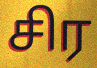
சிர